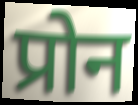
प्रोन